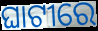
ଘାଟୀରେ